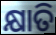
କ୍ଷାତି